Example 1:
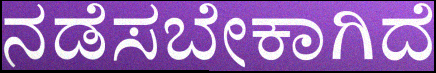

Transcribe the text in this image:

ನಡೆಸಬೇಕಾಗಿದೆ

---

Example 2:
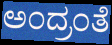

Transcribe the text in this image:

ಅಂದ್ರಂತೆ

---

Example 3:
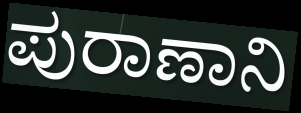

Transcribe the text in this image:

ಪುರಾಣಾನಿ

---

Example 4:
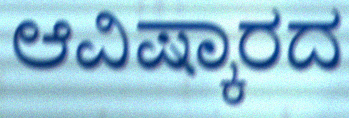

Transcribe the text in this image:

ಆವಿಷ್ಕಾರದ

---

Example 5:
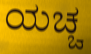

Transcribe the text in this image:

ಯಚ್ಚ